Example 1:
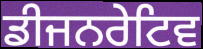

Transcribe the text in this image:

ਡੀਜਨਰੇਟਿਵ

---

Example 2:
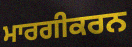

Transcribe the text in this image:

ਮਾਰਗੀਕਰਨ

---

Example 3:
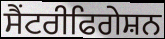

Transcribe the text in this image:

ਸੈਂਟਰੀਫਿਗੇਸ਼ਨ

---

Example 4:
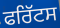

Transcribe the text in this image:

ਫਰਿੱਟਸ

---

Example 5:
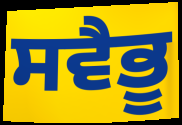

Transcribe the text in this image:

ਸਵੈਭੂ